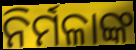
ନିର୍ମଳାଙ୍କ